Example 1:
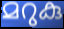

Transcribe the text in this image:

മറുകു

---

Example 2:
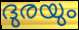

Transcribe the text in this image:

ദുരയും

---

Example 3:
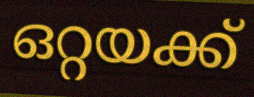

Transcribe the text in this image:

ഒറ്റയക്ക്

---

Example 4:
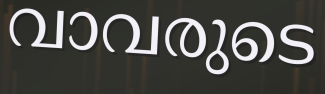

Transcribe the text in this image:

വാവരുടെ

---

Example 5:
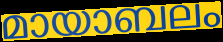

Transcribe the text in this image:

മായാബലം